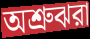
অশ্রুঝরা